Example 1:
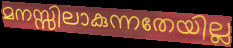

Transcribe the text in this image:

മനസ്സിലാകുന്നതേയില്ല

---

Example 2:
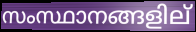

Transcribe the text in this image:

സംസ്ഥാനങ്ങളില്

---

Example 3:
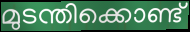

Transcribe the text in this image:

മുടന്തിക്കൊണ്ട്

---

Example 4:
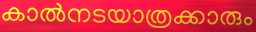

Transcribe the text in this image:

കാൽനടയാത്രക്കാരും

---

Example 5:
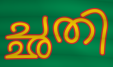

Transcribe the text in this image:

ച്ഛതി